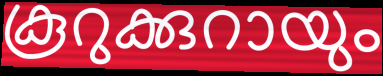
കൂറുക്കുറായും